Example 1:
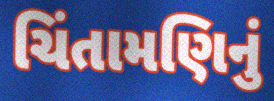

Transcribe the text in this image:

ચિંતામણિનું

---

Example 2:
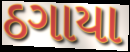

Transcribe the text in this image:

ઠગાયા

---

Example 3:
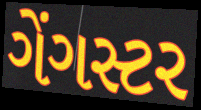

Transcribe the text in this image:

ગેંગસ્ટર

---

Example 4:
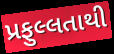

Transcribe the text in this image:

પ્રફુલ્લતાથી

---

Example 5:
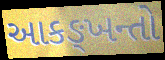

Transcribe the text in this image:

આકઙ્ખન્તો